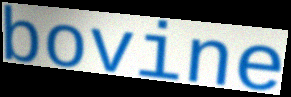
bovine